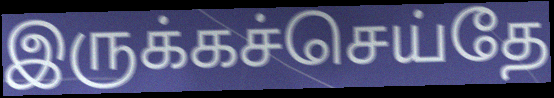
இருக்கச்செய்தே